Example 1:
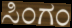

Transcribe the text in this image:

ಸಿಂಗಂ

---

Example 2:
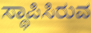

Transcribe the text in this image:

ಸ್ಥಾಪಿಸಿರುವ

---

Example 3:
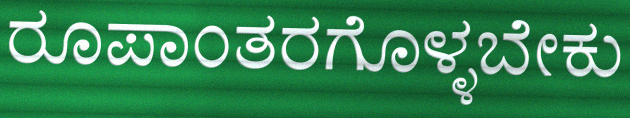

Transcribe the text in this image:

ರೂಪಾಂತರಗೊಳ್ಳಬೇಕು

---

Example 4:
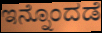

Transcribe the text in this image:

ಇನ್ನೊಂದಡೆ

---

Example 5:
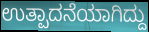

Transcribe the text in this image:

ಉತ್ಪಾದನೆಯಾಗಿದ್ದು